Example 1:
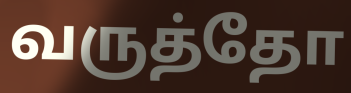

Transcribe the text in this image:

வருத்தோ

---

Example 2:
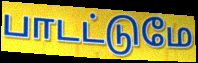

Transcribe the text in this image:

பாடட்டுமே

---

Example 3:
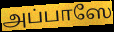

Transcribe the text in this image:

அப்பாஸே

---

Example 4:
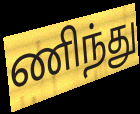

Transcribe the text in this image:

ணிந்து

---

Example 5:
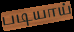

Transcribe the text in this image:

படியாய்